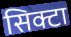
सिक्टा